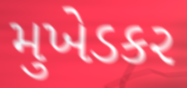
મુખેડકર